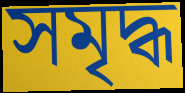
সমৃদ্ধ